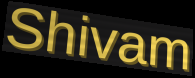
Shivam